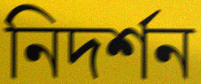
নিদৰ্শন